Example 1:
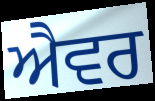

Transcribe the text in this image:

ਐਵਰ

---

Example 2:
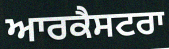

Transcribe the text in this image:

ਆਰਕੈਸਟਰਾ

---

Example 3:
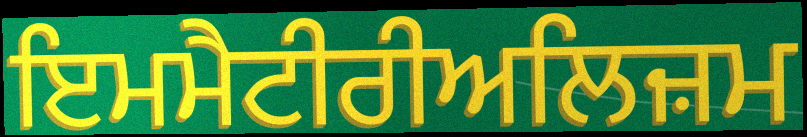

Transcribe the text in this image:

ਇਮਮੈਟੀਰੀਅਲਿਜ਼ਮ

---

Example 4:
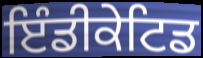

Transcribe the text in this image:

ਇੰਡੀਕੇਟਿਡ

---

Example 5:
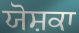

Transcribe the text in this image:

ਯੋਸ਼ਕਾ